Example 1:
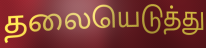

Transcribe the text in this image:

தலையெடுத்து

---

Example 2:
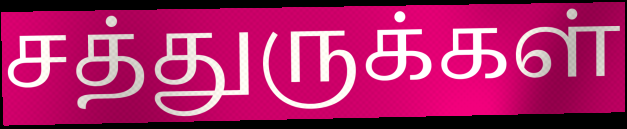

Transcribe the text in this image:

சத்துருக்கள்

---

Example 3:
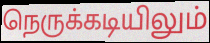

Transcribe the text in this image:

நெருக்கடியிலும்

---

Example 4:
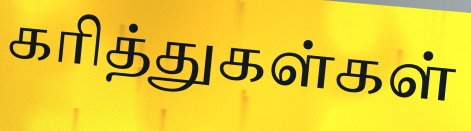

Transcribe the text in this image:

கரித்துகள்கள்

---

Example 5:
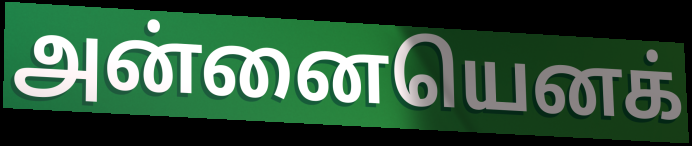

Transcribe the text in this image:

அன்னையெனக்